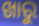
ଖାରୁ